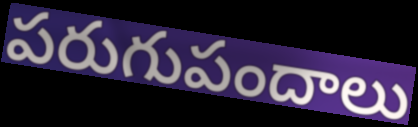
పరుగుపందాలు